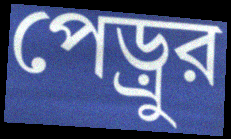
পেড়্রুর